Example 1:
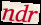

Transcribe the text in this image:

ndr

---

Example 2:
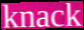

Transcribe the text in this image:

knack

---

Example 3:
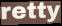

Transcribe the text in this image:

retty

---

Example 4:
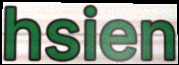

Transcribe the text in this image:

hsien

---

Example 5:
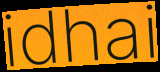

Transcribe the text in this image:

idhai